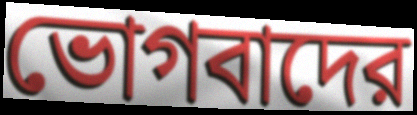
ভোগবাদের